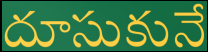
దూసుకునే